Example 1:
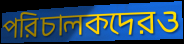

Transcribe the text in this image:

পরিচালকদেরও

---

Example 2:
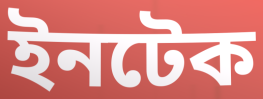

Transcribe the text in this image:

ইনটেক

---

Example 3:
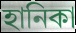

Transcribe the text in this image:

হানিকা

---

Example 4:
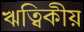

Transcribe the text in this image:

ঋত্বিকীয়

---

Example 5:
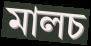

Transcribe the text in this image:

মালচ